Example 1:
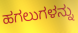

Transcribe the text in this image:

ಹಗಲುಗಳನ್ನು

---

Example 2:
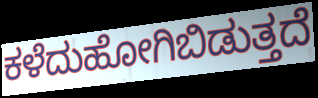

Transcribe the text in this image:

ಕಳೆದುಹೋಗಿಬಿಡುತ್ತದೆ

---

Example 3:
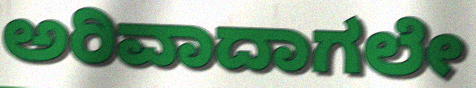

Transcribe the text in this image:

ಅರಿವಾದಾಗಲೇ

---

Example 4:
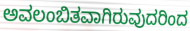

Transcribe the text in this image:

ಅವಲಂಬಿತವಾಗಿರುವುದರಿಂದ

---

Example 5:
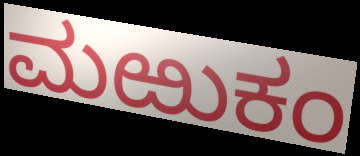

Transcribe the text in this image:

ಮಱುಕಂ